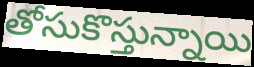
తోసుకొస్తున్నాయి